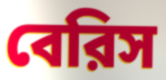
বেরিস